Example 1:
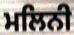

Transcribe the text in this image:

ਮਲਿਨੀ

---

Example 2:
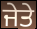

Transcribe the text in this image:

ਜੇਤੇ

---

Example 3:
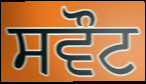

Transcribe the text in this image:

ਸਵੌਟ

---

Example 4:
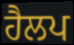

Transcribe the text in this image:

ਹੈਲਪ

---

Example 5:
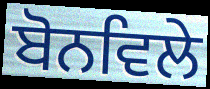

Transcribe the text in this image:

ਬੋਨਵਿਲੇ